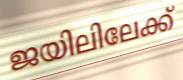
ജയിലിലേക്ക്